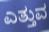
ಎತ್ತುವ